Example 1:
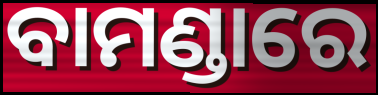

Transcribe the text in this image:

ବାମଣ୍ଡାରେ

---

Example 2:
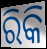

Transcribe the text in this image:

ରିକି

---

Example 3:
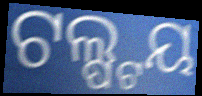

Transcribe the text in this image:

ଟଲ୍ଷ୍ଟୟ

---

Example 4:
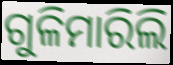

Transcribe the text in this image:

ଗୁଳିମାରିଲି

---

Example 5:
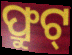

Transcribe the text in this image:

ଫ୍ରୁଟ୍